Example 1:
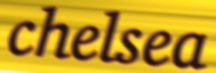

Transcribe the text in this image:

chelsea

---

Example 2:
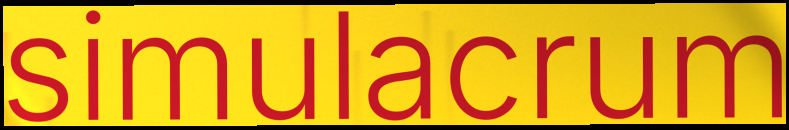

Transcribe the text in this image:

simulacrum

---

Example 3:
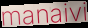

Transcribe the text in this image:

manaivi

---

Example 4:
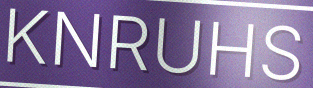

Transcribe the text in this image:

KNRUHS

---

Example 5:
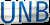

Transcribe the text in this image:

UNB